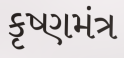
કૃષ્ણમંત્ર